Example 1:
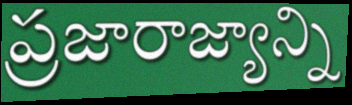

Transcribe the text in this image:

ప్రజారాజ్యాన్ని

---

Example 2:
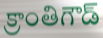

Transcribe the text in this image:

క్రాంతిగౌడ్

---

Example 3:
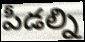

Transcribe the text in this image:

పీడల్ని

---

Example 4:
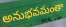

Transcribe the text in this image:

అనుభవమంతా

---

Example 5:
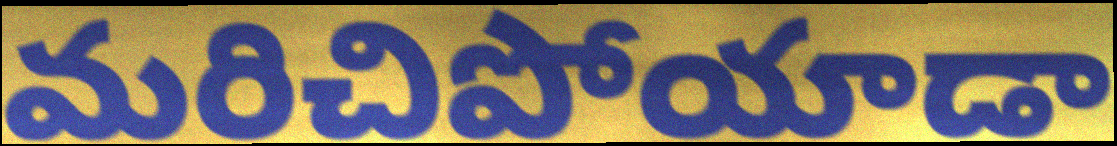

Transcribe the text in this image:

మరిచిపోయాడా